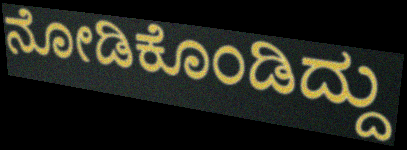
ನೋಡಿಕೊಂಡಿದ್ದು